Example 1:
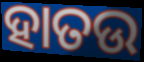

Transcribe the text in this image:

ହାତଉ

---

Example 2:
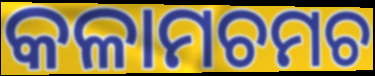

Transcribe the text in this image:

କଳାମଚମଚ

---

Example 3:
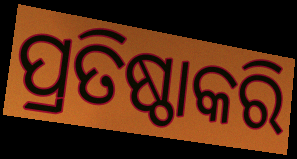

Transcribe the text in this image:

ପ୍ରତିଷ୍ଠାକରି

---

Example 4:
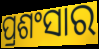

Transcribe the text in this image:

ପ୍ରଶଂସାର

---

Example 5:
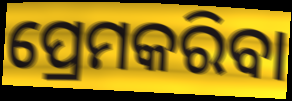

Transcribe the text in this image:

ପ୍ରେମକରିବା